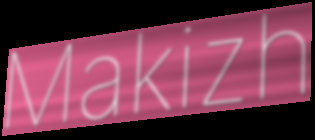
Makizh